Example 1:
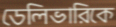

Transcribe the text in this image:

ডেলিভারিকে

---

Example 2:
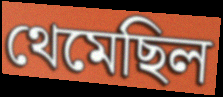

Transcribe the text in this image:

থেমেছিল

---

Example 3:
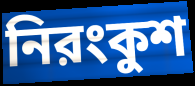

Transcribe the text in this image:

নিরংকুশ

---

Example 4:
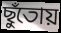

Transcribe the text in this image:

ছুঁতোয়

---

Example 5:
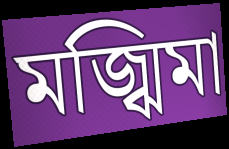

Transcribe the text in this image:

মজ্ঝিমা